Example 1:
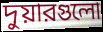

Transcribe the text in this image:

দুয়ারগুলো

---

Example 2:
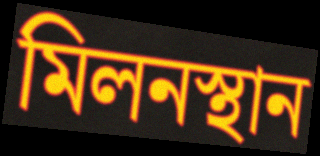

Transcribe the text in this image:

মিলনস্থান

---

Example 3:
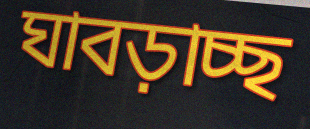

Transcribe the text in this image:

ঘাবড়াচ্ছ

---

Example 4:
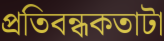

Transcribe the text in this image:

প্রতিবন্ধকতাটা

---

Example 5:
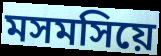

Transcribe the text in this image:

মসমসিয়ে